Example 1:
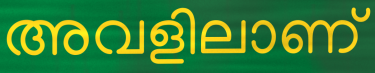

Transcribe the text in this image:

അവളിലാണ്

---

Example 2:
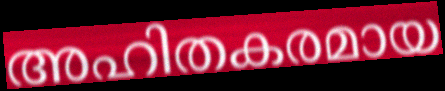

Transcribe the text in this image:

അഹിതകരമായ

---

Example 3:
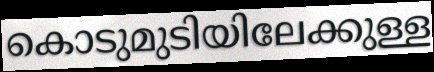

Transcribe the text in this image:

കൊടുമുടിയിലേക്കുള്ള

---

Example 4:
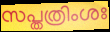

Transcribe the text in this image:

സപ്തത്രിംശഃ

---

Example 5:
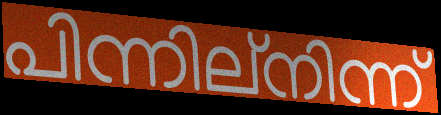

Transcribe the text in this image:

പിന്നില്നിന്ന്